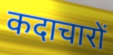
कदाचारों